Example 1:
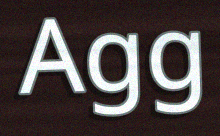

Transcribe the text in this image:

Agg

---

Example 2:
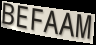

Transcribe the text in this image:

BEFAAM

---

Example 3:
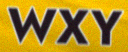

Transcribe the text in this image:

WXY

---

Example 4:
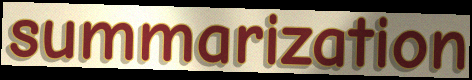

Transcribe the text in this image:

summarization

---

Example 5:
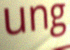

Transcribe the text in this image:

ung